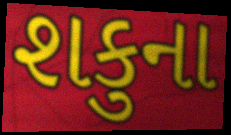
શકુના